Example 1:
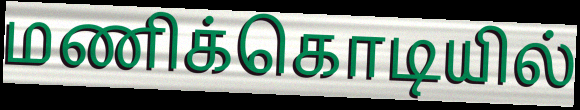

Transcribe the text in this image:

மணிக்கொடியில்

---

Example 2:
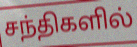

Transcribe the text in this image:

சந்திகளில்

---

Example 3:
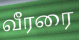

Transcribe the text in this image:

வீரரை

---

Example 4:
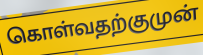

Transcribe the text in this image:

கொள்வதற்குமுன்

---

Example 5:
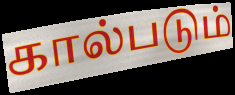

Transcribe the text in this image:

கால்படும்